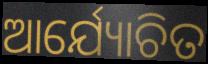
ଆର୍ଯ୍ୟୋଚିତ